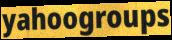
yahoogroups